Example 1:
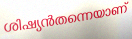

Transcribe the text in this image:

ശിഷ്യൻതന്നെയാണ്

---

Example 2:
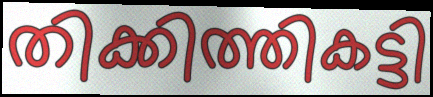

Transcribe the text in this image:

തിക്കിത്തികട്ടി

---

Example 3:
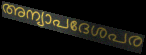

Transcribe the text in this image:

അന്യാപദേശപര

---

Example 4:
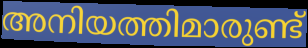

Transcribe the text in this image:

അനിയത്തിമാരുണ്ട്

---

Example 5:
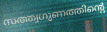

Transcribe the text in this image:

സത്ത്വഗുണത്തിന്റെ